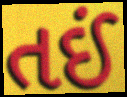
તઈં